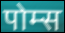
पोम्स